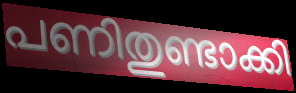
പണിതുണ്ടാക്കി